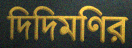
দিদিমণির